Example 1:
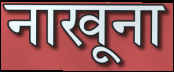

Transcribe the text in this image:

नाखूना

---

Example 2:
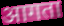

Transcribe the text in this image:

आगता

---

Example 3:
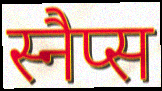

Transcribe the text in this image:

स्नैप्स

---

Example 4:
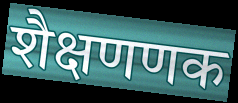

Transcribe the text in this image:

शैक्षणणक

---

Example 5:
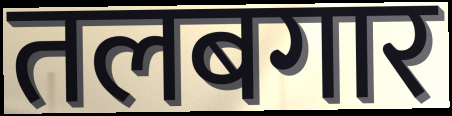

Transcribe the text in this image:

तलबगार